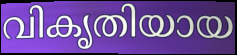
വികൃതിയായ